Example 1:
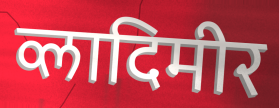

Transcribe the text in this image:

व्लादिमीर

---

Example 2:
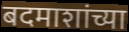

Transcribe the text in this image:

बदमाशांच्या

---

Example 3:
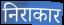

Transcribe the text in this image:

निराकार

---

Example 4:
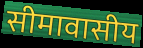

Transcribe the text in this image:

सीमावासीय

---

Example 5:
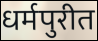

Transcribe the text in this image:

धर्मपुरीत